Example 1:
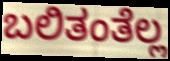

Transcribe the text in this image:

ಬಲಿತಂತೆಲ್ಲ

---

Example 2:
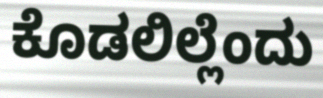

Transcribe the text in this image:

ಕೊಡಲಿಲ್ಲೆಂದು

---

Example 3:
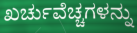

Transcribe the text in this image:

ಖರ್ಚುವೆಚ್ಚಗಳನ್ನು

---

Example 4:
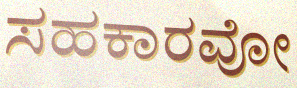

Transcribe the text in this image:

ಸಹಕಾರವೋ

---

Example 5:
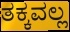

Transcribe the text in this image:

ತಕ್ಕವಲ್ಲ